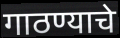
गाठण्याचे